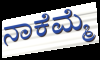
ನಾಕೆಮ್ಮೆ